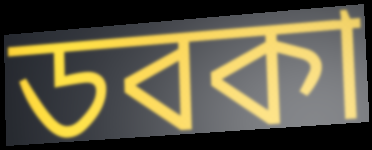
ডবকা